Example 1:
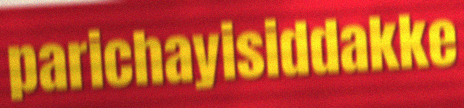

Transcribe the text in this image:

parichayisiddakke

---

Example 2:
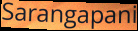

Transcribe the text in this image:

Sarangapani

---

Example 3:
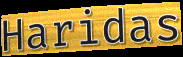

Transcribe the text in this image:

Haridas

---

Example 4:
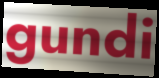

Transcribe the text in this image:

gundi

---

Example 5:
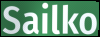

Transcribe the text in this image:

Sailko